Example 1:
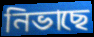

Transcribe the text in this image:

নিভাছে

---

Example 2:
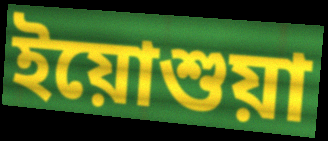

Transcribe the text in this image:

ইয়োশুয়া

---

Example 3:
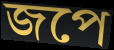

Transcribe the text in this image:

জপে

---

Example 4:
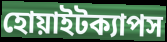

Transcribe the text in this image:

হোয়াইটক্যাপস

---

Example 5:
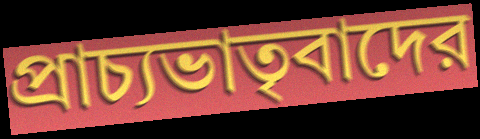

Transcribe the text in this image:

প্রাচ্যভাতৃবাদের